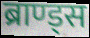
ब्राण्‍ड्स